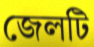
জেলটি